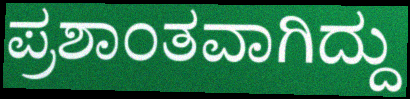
ಪ್ರಶಾಂತವಾಗಿದ್ದು